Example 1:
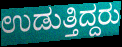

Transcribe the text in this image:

ಉಡುತ್ತಿದ್ದರು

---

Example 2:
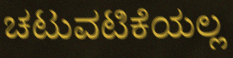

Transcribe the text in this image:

ಚಟುವಟಿಕೆಯಲ್ಲ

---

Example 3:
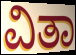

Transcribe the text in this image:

ವಿತಾ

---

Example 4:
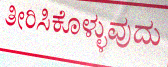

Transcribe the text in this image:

ತೀರಿಸಿಕೊಳ್ಳುವುದು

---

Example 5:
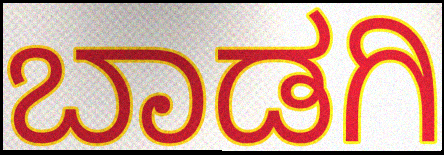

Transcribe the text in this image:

ಬಾಡಗಿ